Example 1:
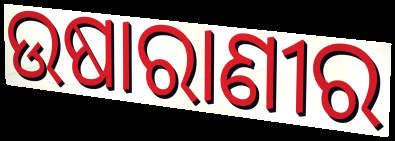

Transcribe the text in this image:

ଉଷାରାଣୀର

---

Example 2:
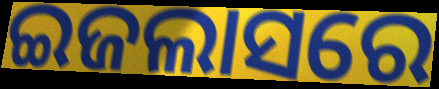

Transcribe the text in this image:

ଇଜଲାସରେ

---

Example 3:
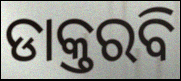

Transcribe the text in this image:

ଡାକ୍ତରବି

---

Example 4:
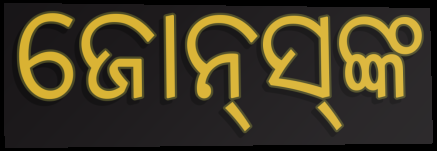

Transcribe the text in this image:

ଜୋନ୍‌ସ୍‌ଙ୍କ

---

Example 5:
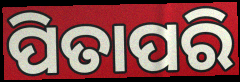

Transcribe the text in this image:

ପିତାପରି